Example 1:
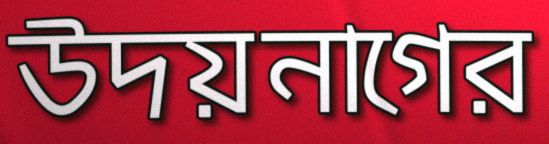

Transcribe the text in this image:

উদয়নাগের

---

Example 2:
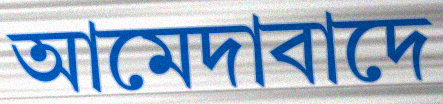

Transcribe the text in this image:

আমেদাবাদে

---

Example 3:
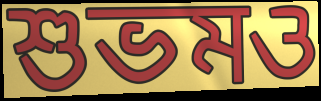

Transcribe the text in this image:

শুভমও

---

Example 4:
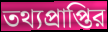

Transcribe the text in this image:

তথ্যপ্রাপ্তির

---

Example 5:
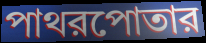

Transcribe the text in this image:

পাথরপোতার